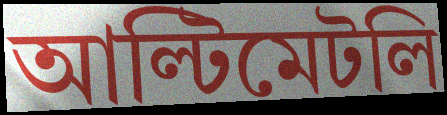
আল্টিমেটলি